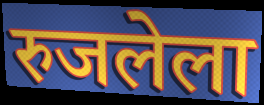
रुजलेला